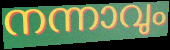
നന്നാവും